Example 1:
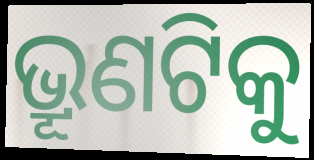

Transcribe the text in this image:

ଭ୍ରୂଣଟିକୁ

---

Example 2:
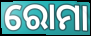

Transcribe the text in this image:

ରୋମା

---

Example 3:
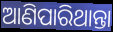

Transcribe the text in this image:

ଆଣିପାରିଥାନ୍ତା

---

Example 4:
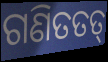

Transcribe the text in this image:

ଗଣିତତତ୍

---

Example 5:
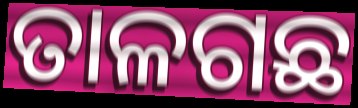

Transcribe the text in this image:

ତାଳଗଛ